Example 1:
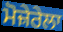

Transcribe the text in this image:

ਮੋਜ਼ੇਰੇਲਾ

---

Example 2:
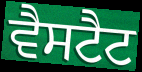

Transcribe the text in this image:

ਵੈਸਟੈਟ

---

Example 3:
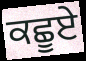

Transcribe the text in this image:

ਕਛੂਏ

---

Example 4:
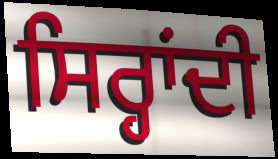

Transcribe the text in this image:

ਸਿਰ੍ਹਾਂਦੀ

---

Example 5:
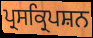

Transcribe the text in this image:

ਪ੍ਰਸਕ੍ਰਿਪਸ਼ਨ